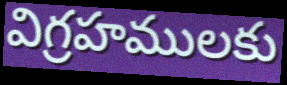
విగ్రహములకు